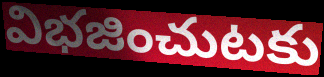
విభజించుటకు